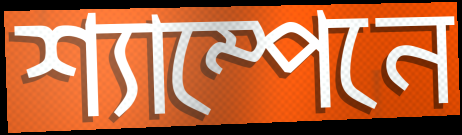
শ্যাম্পেনে